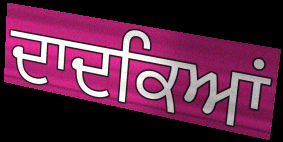
ਦਾਦਕਿਆਂ